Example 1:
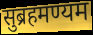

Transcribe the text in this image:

सुब्रहमण्यम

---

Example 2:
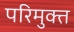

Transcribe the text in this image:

परिमुक्त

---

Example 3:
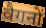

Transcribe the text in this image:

वैगनों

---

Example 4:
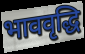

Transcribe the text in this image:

भाववृद्धि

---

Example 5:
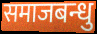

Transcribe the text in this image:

समाजबन्धु